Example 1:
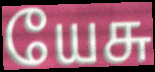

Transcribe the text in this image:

யேசு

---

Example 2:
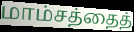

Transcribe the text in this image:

மாம்சத்தைத்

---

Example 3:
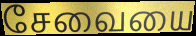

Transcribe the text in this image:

சேவையை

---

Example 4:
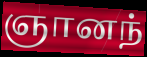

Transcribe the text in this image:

ஞானந்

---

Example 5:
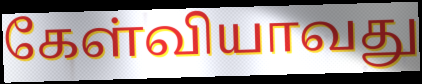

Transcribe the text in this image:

கேள்வியாவது